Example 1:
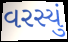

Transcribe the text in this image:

વરસ્યું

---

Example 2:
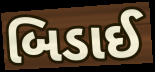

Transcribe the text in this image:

બિડાઈ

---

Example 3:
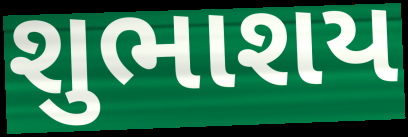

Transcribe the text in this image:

શુભાશય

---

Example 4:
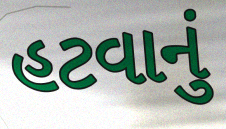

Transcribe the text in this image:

હટવાનું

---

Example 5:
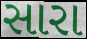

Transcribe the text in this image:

સારા